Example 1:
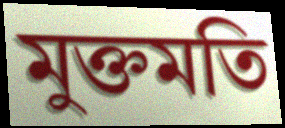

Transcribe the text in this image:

মুক্তমতি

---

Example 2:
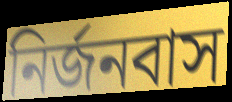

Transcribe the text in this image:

নির্জনবাস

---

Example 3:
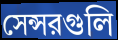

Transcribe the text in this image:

সেন্সরগুলি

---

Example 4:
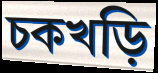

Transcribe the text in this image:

চকখড়ি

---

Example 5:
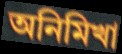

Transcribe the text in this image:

অনিমিখা